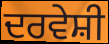
ਦਰਵੇਸ਼ੀ